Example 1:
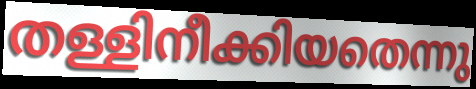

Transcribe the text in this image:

തള്ളിനീക്കിയതെന്നു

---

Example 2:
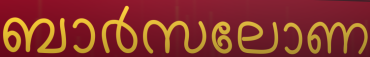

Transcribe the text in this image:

ബാർസലോണ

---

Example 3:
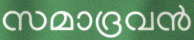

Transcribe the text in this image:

സമാദ്രവൻ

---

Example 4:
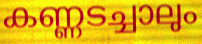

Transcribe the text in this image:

കണ്ണടച്ചാലും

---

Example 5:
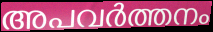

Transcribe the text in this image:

അപവർത്തനം